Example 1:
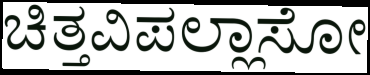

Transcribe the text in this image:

ಚಿತ್ತವಿಪಲ್ಲಾಸೋ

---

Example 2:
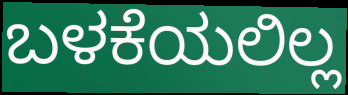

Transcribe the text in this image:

ಬಳಕೆಯಲಿಲ್ಲ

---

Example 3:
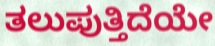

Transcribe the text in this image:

ತಲುಪುತ್ತಿದೆಯೇ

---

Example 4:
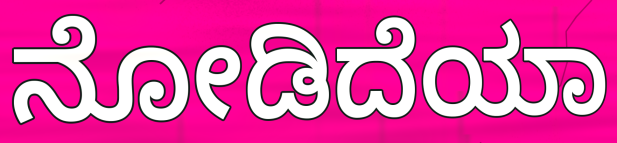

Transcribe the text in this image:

ನೋಡಿದೆಯಾ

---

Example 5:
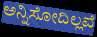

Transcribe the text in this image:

ಅನ್ನಿಸೋದಿಲ್ಲವೆ